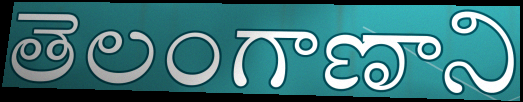
తెలంగాణాని